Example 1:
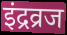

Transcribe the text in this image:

इंद्रव्रज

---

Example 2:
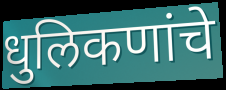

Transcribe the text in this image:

धुलिकणांचे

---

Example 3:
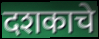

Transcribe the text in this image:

दशकाचे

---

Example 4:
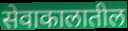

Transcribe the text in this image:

सेवाकालातील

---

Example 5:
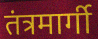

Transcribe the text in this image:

तंत्रमार्गी